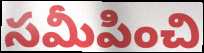
సమీపించి